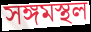
সঙ্গমস্থল